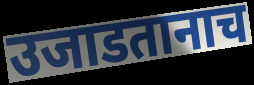
उजाडतानाच